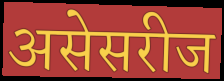
असेसरीज